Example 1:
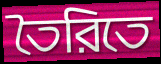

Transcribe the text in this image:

তৈরিতে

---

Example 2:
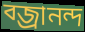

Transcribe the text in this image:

ব্জ্রানন্দ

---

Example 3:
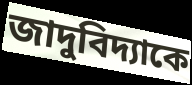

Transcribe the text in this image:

জাদুবিদ্যাকে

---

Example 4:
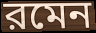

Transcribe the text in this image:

রমেন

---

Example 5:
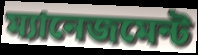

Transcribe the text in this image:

ম্যানেজমেন্ট